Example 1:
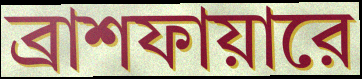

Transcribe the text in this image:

ব্রাশফায়ারে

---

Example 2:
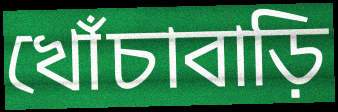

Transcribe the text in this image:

খোঁচাবাড়ি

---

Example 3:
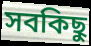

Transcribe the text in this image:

সবকিছু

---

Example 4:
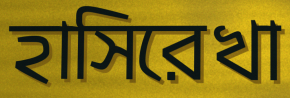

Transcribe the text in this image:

হাসিরেখা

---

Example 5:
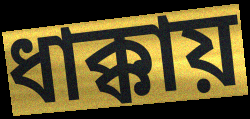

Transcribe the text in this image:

ধাক্কায়